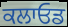
ਕਲਾਓਡ